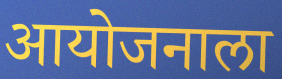
आयोजनाला